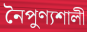
নৈপুণ্যশালী